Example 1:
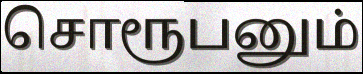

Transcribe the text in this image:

சொரூபனும்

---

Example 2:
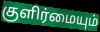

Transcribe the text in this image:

குளிர்மையும்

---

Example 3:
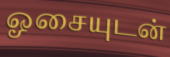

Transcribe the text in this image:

ஓசையுடன்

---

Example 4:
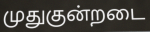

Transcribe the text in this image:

முதுகுன்றடை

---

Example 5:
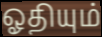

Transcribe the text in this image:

ஓதியும்